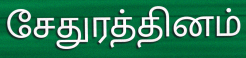
சேதுரத்தினம்